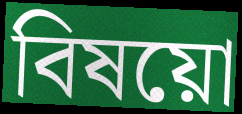
বিষয়ো